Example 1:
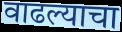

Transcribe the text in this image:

वाढल्याचा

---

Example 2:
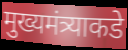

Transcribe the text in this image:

मुख्यमंत्र्याकडे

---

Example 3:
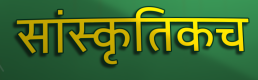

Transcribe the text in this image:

सांस्कृतिकच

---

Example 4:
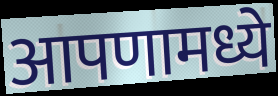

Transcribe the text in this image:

आपणामध्ये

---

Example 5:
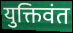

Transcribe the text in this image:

युक्तिवंत